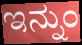
ಇನ್ನುಂ